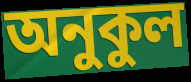
অনুকুল